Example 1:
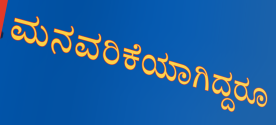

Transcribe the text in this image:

ಮನವರಿಕೆಯಾಗಿದ್ದರೂ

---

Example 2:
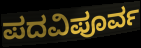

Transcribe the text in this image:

ಪದವಿಪೂರ್ವ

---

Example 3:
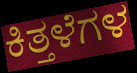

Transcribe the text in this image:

ಕಿತ್ತಳೆಗಳ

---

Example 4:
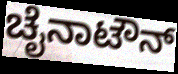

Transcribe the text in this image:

ಚೈನಾಟೌನ್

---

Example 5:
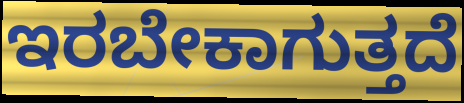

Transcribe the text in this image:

ಇರಬೇಕಾಗುತ್ತದೆ